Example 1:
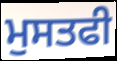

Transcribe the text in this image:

ਮੁਸਤਫੀ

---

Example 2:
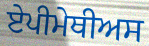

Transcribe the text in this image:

ਏਪੀਮੇਥੀਅਸ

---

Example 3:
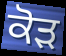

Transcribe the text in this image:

ਕੋੜ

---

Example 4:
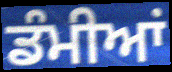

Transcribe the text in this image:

ਡੰਮੀਆਂ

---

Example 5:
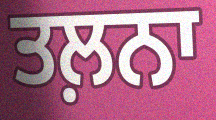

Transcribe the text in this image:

ਤਲ਼ਨਾ